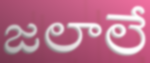
జలాలే